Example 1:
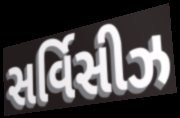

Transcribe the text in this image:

સર્વિસીઝ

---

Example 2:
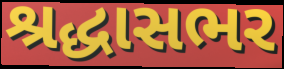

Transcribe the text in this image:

શ્રદ્ધાસભર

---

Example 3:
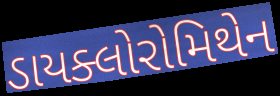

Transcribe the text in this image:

ડાયક્લોરોમિથેન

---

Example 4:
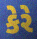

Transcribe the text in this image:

કેરે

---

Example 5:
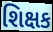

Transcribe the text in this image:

શિક્ષક